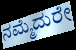
ನಮ್ಮೆದುರೇ